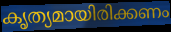
കൃത്യമായിരിക്കണം